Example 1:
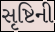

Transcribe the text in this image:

સૃષ્ટિની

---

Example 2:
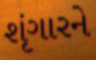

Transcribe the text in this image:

શૃંગારને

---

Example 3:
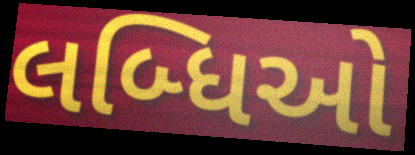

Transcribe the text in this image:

લબ્ધિઓ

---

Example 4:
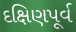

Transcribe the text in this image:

દક્ષિણપૂર્વ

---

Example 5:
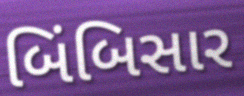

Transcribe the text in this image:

બિંબિસાર